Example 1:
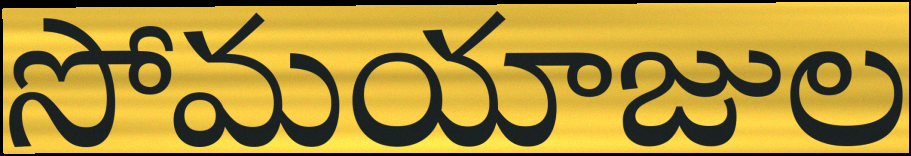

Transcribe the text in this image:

సోమయాజుల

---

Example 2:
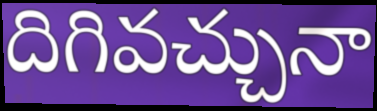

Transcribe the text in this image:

దిగివచ్చునా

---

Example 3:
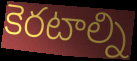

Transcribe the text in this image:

కెరటాల్ని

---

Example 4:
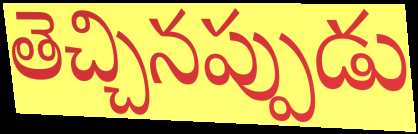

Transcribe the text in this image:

తెచ్చినప్పుడు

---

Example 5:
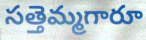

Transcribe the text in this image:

సత్తెమ్మగారూ